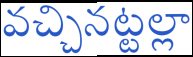
వచ్చినట్టల్లా